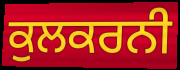
ਕੁਲਕਰਨੀ